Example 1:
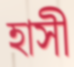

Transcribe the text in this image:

হাসী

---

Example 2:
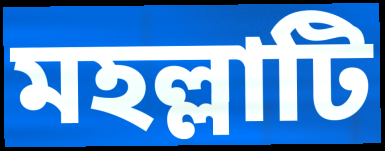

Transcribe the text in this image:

মহল্লাটি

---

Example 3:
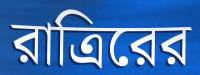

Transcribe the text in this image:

রাত্রিরের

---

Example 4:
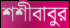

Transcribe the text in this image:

শশীবাবুর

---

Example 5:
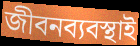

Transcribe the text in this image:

জীবনব্যবস্থাই